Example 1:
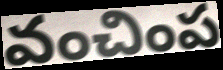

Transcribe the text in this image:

వంచింప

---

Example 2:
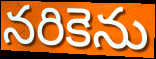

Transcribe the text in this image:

నరికెను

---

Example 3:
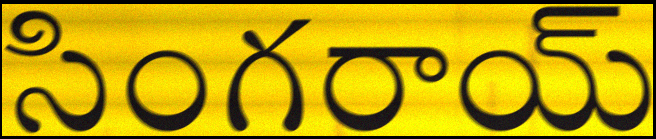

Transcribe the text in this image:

సింగరాయ్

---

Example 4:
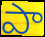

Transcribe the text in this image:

పా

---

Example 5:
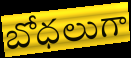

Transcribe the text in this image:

బోధలుగా